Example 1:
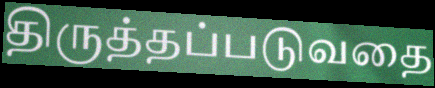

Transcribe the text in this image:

திருத்தப்படுவதை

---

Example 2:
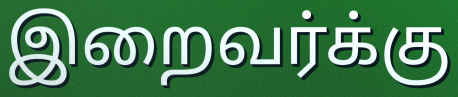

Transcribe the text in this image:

இறைவர்க்கு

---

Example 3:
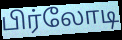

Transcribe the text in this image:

பிர்லோடி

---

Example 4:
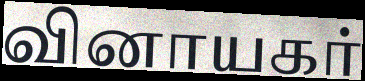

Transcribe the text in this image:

வினாயகர்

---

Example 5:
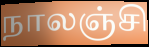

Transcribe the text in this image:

நாலஞ்சி